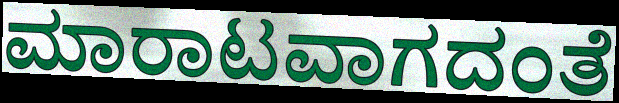
ಮಾರಾಟವಾಗದಂತೆ